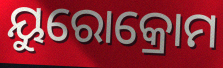
ୟୁରୋକ୍ରୋମ